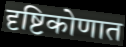
दृष्टिकोणात